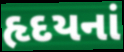
હૃદયનાં